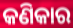
କଣିକାର